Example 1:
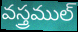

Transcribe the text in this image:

వస్త్రముల్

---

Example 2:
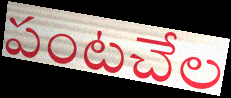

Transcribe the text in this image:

పంటచేల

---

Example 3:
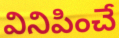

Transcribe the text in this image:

వినిపించే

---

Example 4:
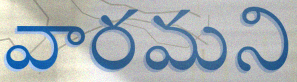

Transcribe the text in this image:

వారమని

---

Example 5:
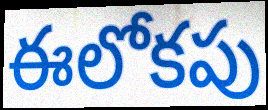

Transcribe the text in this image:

ఈలోకపు